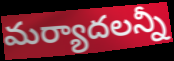
మర్యాదలన్నీ